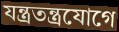
যন্ত্রতন্ত্রযোগে